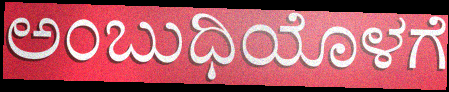
ಅಂಬುಧಿಯೊಳಗೆ